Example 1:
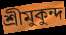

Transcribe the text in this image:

শ্রীমুকুন্দ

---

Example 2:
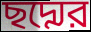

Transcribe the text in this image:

ছদ্মের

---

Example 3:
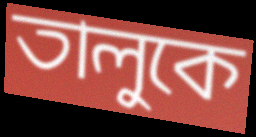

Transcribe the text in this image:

তালুকে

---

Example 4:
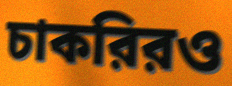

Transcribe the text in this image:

চাকরিরও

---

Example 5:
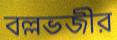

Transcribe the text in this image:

বল্লভজীর